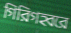
গিরিগহ্বরে